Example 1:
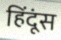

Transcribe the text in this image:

हिंदूंस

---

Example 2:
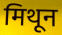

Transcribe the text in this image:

मिथून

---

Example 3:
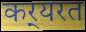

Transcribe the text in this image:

कर्यरत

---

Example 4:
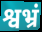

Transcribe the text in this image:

श्वभ्रं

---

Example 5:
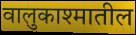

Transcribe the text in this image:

वालुकाश्मातील